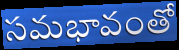
సమభావంతో